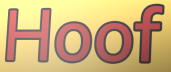
Hoof